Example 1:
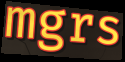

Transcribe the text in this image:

mgrs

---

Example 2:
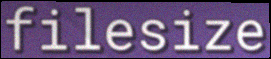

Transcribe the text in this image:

filesize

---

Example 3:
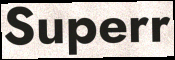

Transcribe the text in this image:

Superr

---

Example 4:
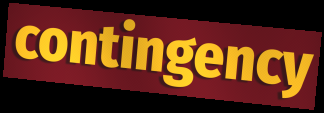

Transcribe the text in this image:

contingency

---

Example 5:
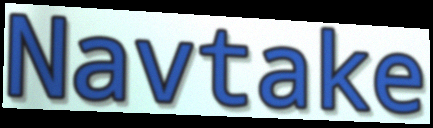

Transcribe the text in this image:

Navtake